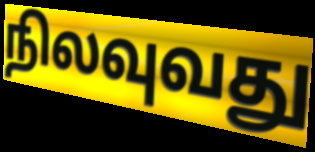
நிலவுவது